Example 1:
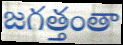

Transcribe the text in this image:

జగత్తంతా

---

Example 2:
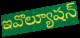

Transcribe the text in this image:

ఇవొల్యూషన్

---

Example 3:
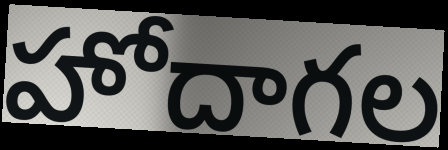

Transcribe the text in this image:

హోదాగల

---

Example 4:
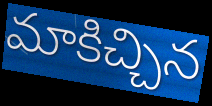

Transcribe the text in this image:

మాకిచ్చిన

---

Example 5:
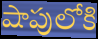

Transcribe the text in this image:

షాపులోకి